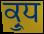
ਕ੍ਰੁਧ